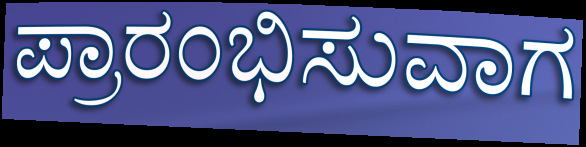
ಪ್ರಾರಂಭಿಸುವಾಗ